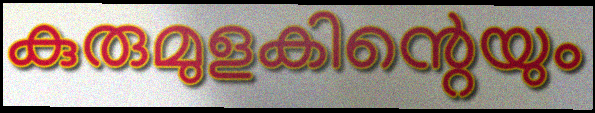
കുരുമുളകിന്റെയും